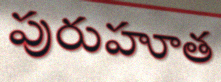
పురుహూత